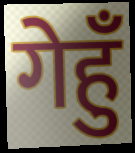
गेहुँ